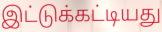
இட்டுக்கட்டியது